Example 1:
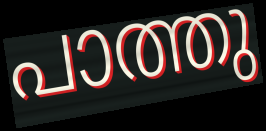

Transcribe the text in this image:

പാത്തു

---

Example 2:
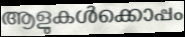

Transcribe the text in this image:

ആളുകൾക്കൊപ്പം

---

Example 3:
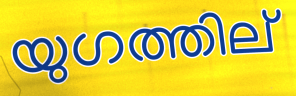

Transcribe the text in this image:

യുഗത്തില്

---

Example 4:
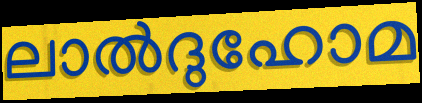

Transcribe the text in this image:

ലാൽദുഹോമ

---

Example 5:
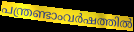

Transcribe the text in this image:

പന്ത്രണ്ടാംവർഷത്തിൽ